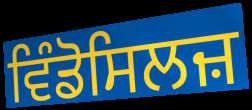
ਵਿੰਡੋਸਿਲਜ਼